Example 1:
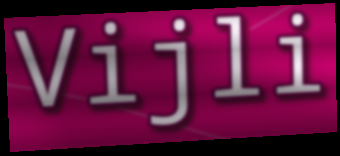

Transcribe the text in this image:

Vijli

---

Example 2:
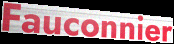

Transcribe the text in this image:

Fauconnier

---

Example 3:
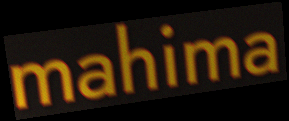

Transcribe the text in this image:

mahima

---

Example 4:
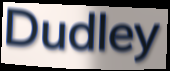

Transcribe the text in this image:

Dudley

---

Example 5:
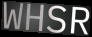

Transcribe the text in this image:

WHSR